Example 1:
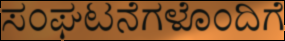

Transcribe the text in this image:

ಸಂಘಟನೆಗಳೊಂದಿಗೆ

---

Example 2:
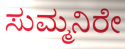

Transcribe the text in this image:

ಸುಮ್ಮನಿರೇ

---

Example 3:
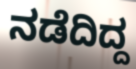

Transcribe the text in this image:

ನಡೆದಿದ್ದ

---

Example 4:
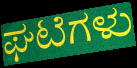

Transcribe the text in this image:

ಘಟೆಗಳು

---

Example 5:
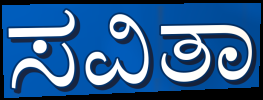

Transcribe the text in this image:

ಸವಿತಾ